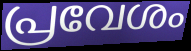
പ്രവേശം